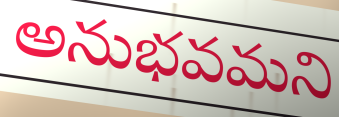
అనుభవమని